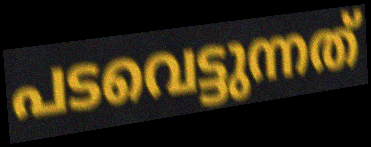
പടവെട്ടുന്നത്